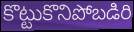
కొట్టుకొనిపోబడిరి